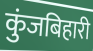
कुंजबिहारी